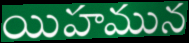
యిహమున